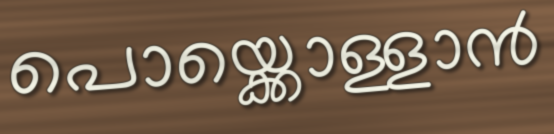
പൊയ്ക്കൊള്ളാൻ